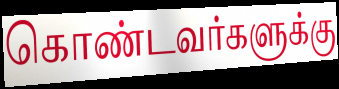
கொண்டவர்களுக்கு